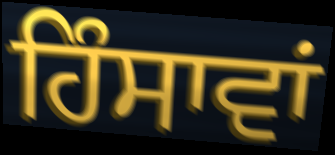
ਹਿੰਸਾਵਾਂ